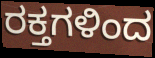
ರಕ್ತಗಳಿಂದ